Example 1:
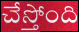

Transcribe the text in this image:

చేస్తోంది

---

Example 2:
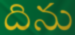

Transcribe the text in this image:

దిను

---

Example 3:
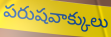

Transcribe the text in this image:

పరుషవాక్కులు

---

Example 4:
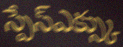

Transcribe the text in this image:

స్పేస్ఎక్స్కు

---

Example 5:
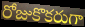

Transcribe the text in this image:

రోజుకొకరుగా